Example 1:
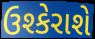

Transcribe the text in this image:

ઉશ્કેરાશે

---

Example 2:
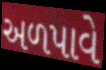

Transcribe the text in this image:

અળપાવે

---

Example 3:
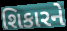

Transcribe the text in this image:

શિકારને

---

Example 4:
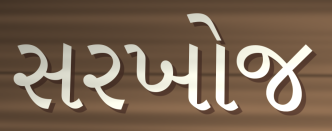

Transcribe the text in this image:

સરખોજ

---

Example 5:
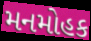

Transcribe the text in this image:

મનમોહક